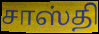
சாஸ்தி